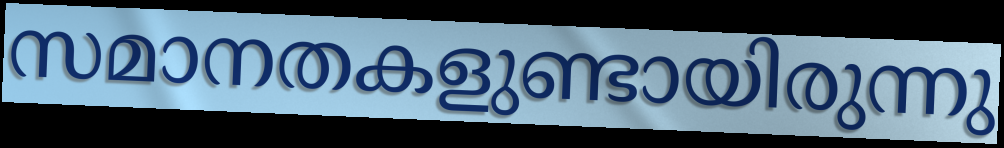
സമാനതകളുണ്ടായിരുന്നു